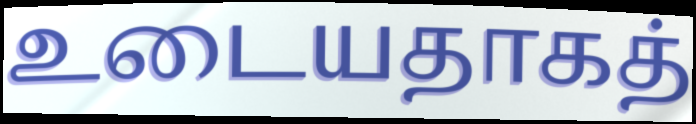
உடையதாகத்